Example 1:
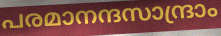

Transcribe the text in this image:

പരമാനന്ദസാന്ദ്രാം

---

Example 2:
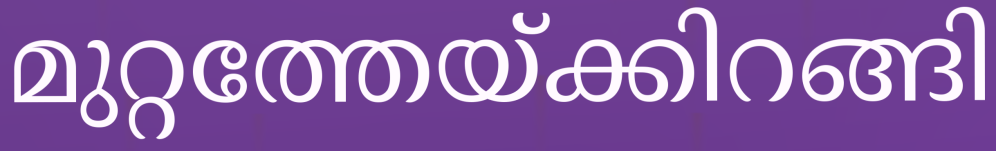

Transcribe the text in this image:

മുറ്റത്തേയ്ക്കിറങ്ങി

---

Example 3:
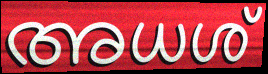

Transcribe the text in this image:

അധശ്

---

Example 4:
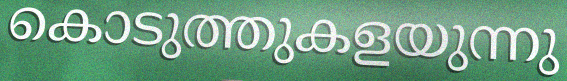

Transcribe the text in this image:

കൊടുത്തുകളയുന്നു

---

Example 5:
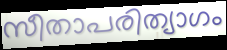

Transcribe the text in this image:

സീതാപരിത്യാഗം